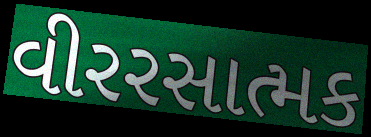
વીરરસાત્મક